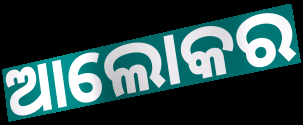
ଆଲୋକର